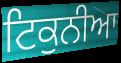
ਟਿਕੁਨੀਆ